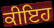
ਕੀਇਹ